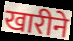
खारीने